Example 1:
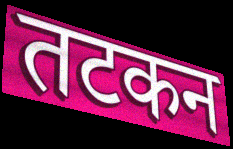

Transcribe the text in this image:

तटकन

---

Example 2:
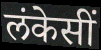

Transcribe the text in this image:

लंकेसीं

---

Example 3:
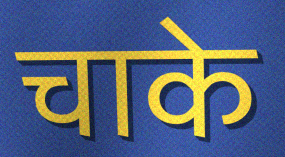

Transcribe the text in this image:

चाके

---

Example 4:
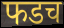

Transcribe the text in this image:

फडच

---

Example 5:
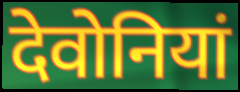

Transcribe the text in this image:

देवोनियां